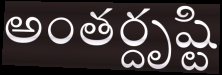
అంతర్దృష్టి